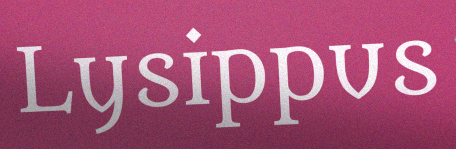
Lysippus